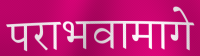
पराभवामागे